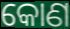
କୋଣ